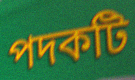
পদকটি